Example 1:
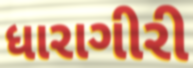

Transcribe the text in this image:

ધારાગીરી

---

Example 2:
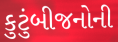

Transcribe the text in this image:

કુટુંબીજનોની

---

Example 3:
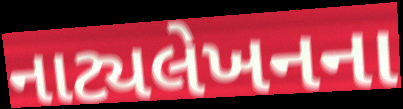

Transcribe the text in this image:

નાટ્યલેખનના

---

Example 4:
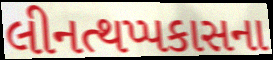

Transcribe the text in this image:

લીનત્થપ્પકાસના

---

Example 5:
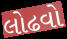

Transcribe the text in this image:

લોઢવો